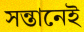
সন্তানেই